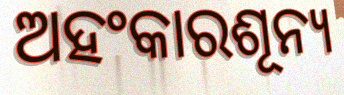
ଅହଂକାରଶୂନ୍ୟ